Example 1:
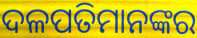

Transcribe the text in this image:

ଦଳପତିମାନଙ୍କର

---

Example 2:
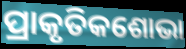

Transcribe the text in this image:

ପ୍ରାକୃତିକଶୋଭା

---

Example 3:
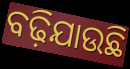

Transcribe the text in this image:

ବଢ଼ିଯାଉଛି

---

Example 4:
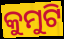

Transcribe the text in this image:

କୁମୁଟି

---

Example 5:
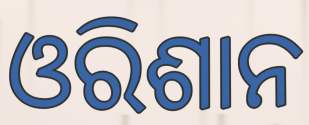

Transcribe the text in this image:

ଓରିଶାନ